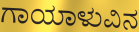
ಗಾಯಾಳುವಿನ